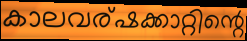
കാലവര്ഷക്കാറ്റിന്റെ